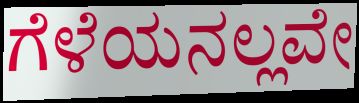
ಗೆಳೆಯನಲ್ಲವೇ